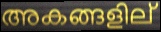
അകങ്ങളില്